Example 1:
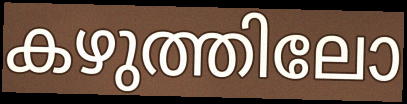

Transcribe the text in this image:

കഴുത്തിലോ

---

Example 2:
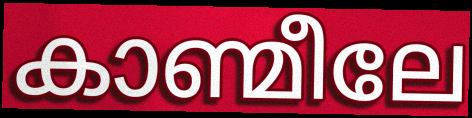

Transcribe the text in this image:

കാണ്മീലേ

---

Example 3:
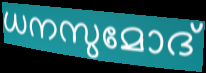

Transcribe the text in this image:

ധനസുമോദ്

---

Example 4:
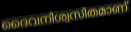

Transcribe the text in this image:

ദൈവനിശ്വസിതമാണ്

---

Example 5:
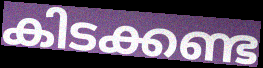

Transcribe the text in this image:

കിടക്കണ്ട